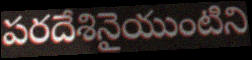
పరదేశినైయుంటిని